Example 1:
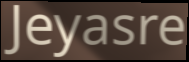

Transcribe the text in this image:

Jeyasre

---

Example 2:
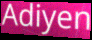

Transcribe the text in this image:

Adiyen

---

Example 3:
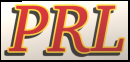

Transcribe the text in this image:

PRL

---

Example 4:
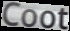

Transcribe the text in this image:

Coot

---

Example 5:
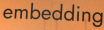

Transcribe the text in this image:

embedding